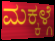
ಮಕ್ಕಳ್ಗೆ